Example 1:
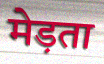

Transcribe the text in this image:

मेड़ता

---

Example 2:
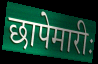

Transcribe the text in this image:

छापेमारीः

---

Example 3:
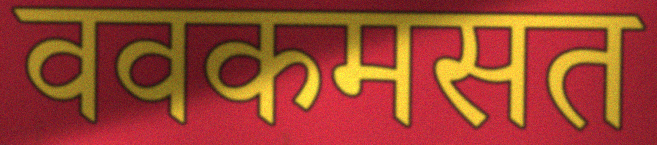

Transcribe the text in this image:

ववकमसत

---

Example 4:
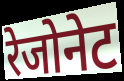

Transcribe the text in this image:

रेजोनेट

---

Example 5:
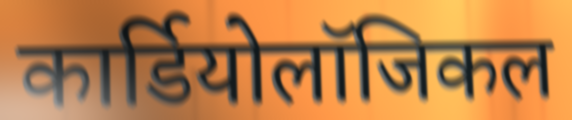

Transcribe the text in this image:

कार्डियोलॉजिकल